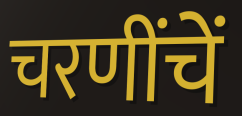
चरणींचें